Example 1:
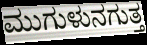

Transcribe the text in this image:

ಮುಗುಳುನಗುತ್ತ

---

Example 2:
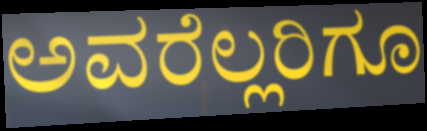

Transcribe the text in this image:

ಅವರೆಲ್ಲರಿಗೂ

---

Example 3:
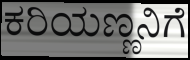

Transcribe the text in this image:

ಕರಿಯಣ್ಣನಿಗೆ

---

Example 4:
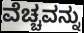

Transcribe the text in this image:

ವೆಚ್ಚವನ್ನು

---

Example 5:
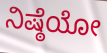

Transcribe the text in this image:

ನಿಷ್ಠೆಯೋ